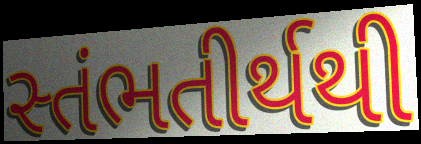
સ્તંભતીર્થથી